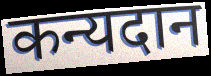
कन्यदान